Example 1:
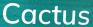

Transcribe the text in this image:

Cactus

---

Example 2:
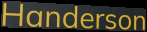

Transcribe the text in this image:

Handerson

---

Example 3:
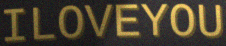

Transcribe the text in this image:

ILOVEYOU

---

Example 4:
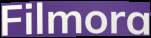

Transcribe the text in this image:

Filmora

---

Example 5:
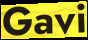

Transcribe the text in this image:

Gavi